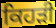
ਕਿਹੜੀ